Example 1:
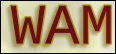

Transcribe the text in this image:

WAM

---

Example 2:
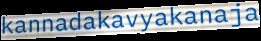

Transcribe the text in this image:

kannadakavyakanaja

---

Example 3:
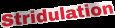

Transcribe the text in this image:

Stridulation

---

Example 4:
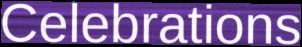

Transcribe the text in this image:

Celebrations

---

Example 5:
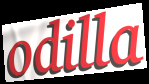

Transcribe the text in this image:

odilla